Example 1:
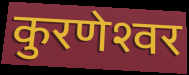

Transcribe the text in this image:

कुरणेश्वर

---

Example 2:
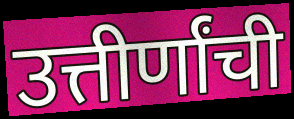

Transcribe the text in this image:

उत्तीर्णांची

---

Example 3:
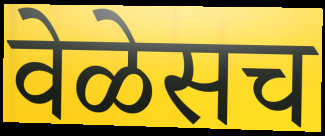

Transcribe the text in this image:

वेळेसच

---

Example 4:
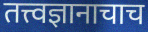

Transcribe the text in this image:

तत्त्वज्ञानाचाच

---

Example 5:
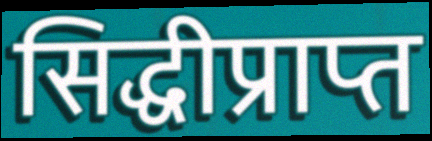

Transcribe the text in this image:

सिद्धीप्राप्त